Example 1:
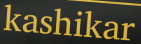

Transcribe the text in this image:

kashikar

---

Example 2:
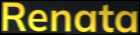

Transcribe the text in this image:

Renata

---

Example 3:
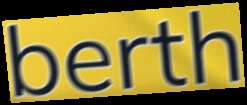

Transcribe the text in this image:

berth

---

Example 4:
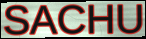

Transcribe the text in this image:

SACHU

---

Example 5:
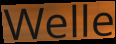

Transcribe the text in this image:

Welle